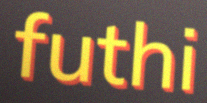
futhi